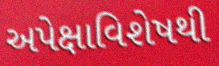
અપેક્ષાવિશેષથી